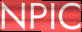
NPIC